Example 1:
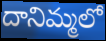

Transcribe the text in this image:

దానిమ్మలో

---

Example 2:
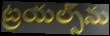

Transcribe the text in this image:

ట్రయల్స్‌ను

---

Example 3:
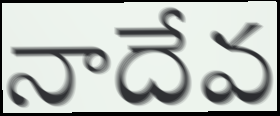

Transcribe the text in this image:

నాదేవ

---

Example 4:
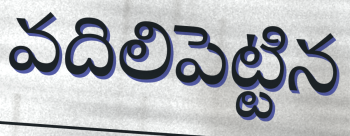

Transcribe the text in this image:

వదిలిపెట్టిన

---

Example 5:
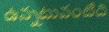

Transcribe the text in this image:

ఉన్నటువంటిది